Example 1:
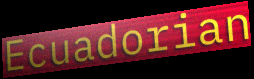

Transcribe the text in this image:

Ecuadorian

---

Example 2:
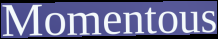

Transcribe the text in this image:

Momentous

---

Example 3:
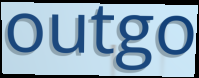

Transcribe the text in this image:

outgo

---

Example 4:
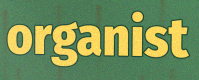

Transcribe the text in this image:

organist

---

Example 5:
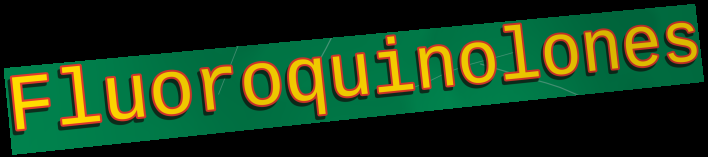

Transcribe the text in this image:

Fluoroquinolones